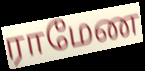
ராமேண